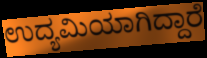
ಉದ್ಯಮಿಯಾಗಿದ್ದಾರೆ